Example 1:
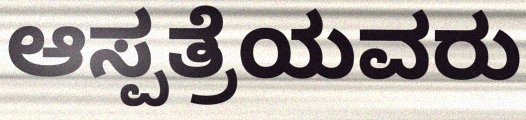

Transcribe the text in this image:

ಆಸ್ಪತ್ರೆಯವರು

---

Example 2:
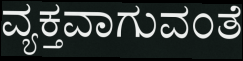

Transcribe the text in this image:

ವ್ಯಕ್ತವಾಗುವಂತೆ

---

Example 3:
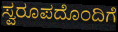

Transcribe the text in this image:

ಸ್ವರೂಪದೊಂದಿಗೆ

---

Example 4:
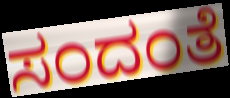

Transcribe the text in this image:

ಸಂದಂತೆ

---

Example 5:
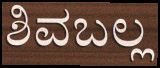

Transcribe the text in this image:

ಶಿವಬಲ್ಲ